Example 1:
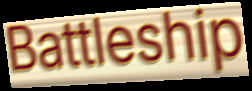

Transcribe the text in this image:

Battleship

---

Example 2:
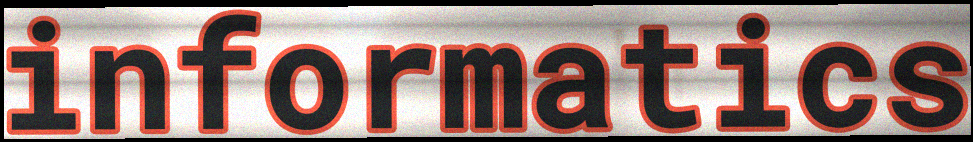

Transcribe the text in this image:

informatics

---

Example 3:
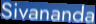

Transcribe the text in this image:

Sivananda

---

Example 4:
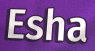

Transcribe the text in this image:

Esha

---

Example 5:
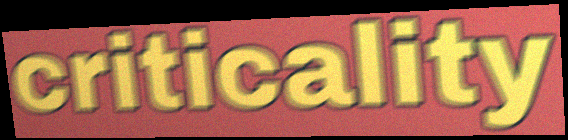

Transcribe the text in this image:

criticality